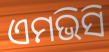
ଏମଭିସି